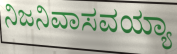
ನಿಜನಿವಾಸವಯ್ಯಾ